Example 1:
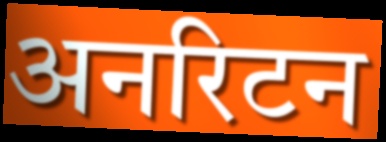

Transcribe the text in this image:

अनरिटन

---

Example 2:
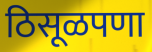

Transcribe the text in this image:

ठिसूळपणा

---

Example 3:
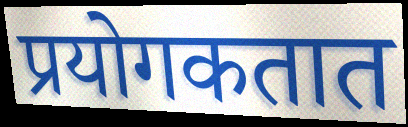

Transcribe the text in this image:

प्रयोगकतात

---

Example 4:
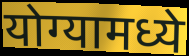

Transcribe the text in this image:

योग्यामध्ये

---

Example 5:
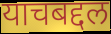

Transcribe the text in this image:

याचबद्दल